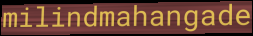
milindmahangade